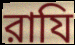
রাযি